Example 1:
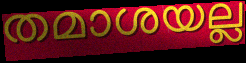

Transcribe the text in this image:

തമാശയല്ല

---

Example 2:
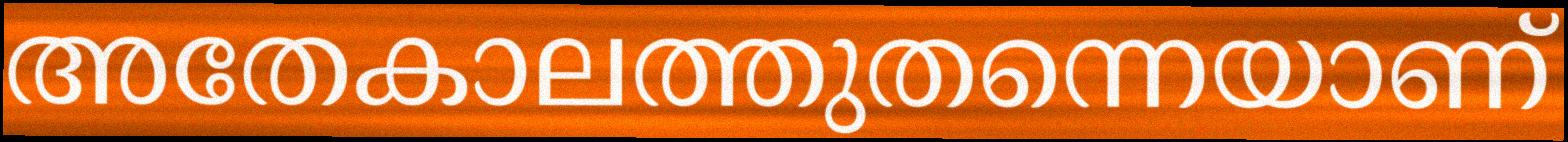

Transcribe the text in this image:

അതേകാലത്തുതന്നെയാണ്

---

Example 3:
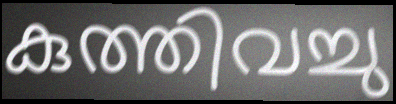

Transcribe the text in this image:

കുത്തിവച്ചു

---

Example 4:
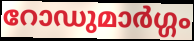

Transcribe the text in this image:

റോഡുമാർഗ്ഗം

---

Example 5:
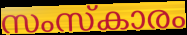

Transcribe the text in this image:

സംസ്‌കാരം